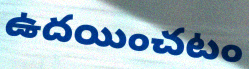
ఉదయించటం